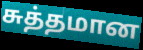
சுத்தமான